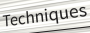
Techniques